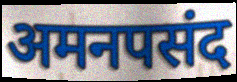
अमनपसंद